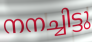
നനച്ചിട്ടു